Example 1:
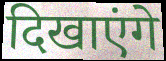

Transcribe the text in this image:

दिखाएंगे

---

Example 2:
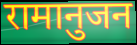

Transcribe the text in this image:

रामानुजन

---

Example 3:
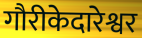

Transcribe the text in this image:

गौरीकेदारेश्वर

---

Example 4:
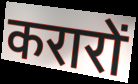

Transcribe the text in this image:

करारों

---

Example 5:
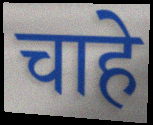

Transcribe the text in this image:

चाहे